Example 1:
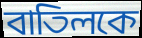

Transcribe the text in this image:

বাতিলকে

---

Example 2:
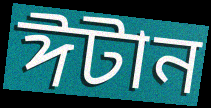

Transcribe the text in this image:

ঈটান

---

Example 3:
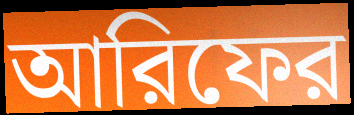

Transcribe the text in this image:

আরিফের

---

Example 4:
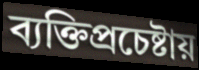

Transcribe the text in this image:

ব্যক্তিপ্রচেষ্টায়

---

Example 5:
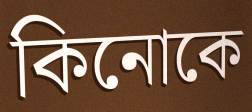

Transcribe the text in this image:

কিনোকে